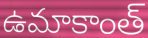
ఉమాకాంత్